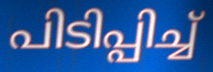
പിടിപ്പിച്ച്